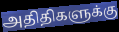
அதிதிகளுக்கு